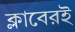
ক্লাবেরই